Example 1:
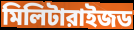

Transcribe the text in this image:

মিলিটারাইজড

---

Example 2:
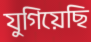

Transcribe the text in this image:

যুগিয়েছি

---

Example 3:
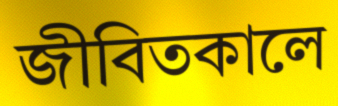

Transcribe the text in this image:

জীবিতকালে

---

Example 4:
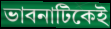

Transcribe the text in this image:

ভাবনাটিকেই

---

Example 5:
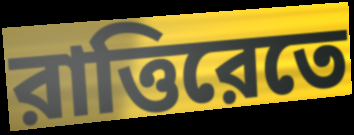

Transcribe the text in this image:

রাত্তিরেতে